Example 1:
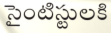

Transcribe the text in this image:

సైంటిస్టులకి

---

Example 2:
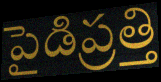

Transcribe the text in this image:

పైడిప్రత్తి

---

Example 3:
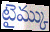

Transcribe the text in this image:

టైమ్కు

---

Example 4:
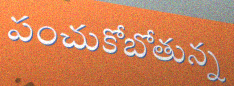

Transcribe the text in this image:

పంచుకోబోతున్న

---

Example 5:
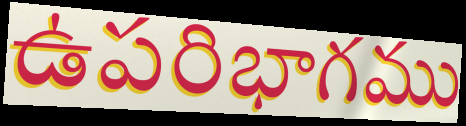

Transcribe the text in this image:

ఉపరిభాగము